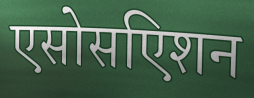
एसोसएिशन